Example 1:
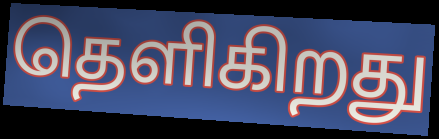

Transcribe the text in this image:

தெளிகிறது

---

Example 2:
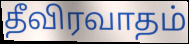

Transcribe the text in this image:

தீவிரவாதம்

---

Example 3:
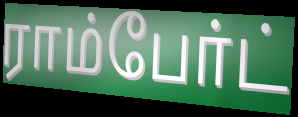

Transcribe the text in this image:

ராம்பேர்ட்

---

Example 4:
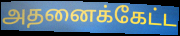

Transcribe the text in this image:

அதனைக்கேட்ட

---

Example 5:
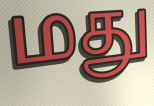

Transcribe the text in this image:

மது